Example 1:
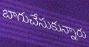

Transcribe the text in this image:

బాగుచేసుకున్నారు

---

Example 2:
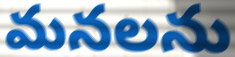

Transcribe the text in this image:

మనలను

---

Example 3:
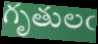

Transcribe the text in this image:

గృతులఁ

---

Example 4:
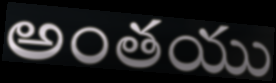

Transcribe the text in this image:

అంతయు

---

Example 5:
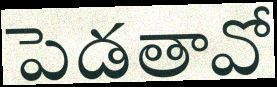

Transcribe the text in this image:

పెడతావో